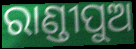
ରାଣ୍ଡୀପୁଅ